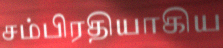
சம்பிரதியாகிய